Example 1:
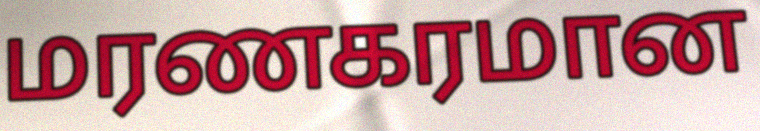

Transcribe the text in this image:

மரணகரமான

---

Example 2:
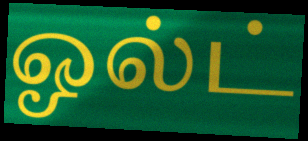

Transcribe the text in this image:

ஓல்ட்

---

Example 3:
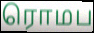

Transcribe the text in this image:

ரொமப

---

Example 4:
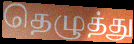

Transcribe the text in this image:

தெழுத்து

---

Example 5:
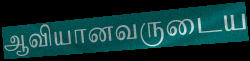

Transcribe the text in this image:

ஆவியானவருடைய